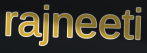
rajneeti